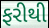
ફરીથી